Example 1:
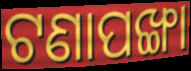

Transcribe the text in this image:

ଟଣାପଙ୍ଖା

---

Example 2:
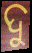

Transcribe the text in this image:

ଦୁ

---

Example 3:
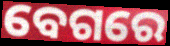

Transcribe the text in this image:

ବେଗରେ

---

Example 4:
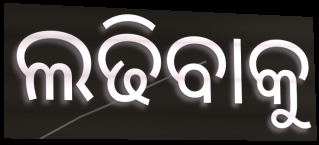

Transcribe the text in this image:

ଲଢିବାକୁ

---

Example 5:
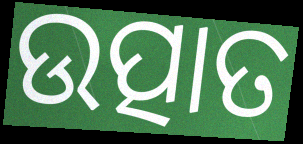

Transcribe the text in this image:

ଉତ୍ପାତ